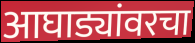
आघाड्यांवरचा